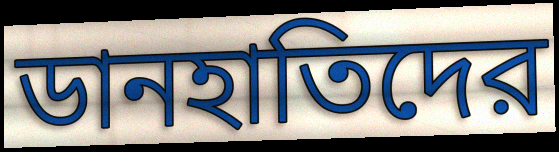
ডানহাতিদের